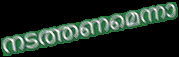
നടത്തണമെന്നാ